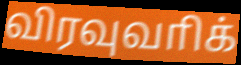
விரவுவரிக்